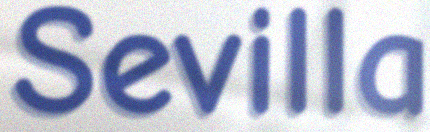
Sevilla